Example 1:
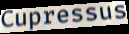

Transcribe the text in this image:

Cupressus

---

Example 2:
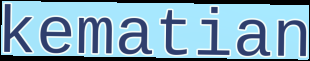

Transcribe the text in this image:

kematian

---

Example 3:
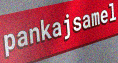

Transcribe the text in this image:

pankajsamel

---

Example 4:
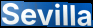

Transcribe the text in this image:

Sevilla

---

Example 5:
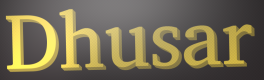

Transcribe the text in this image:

Dhusar